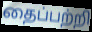
தைப்பற்றி